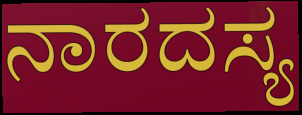
ನಾರದಸ್ಯ